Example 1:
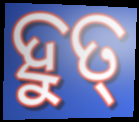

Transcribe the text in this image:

ହୁତ୍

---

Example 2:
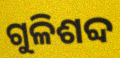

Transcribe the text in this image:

ଗୁଳିଶବ୍ଦ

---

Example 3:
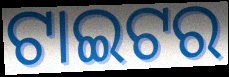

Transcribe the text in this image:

ଟାଇଟର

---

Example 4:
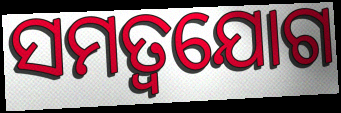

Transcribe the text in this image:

ସମତ୍ୱଯୋଗ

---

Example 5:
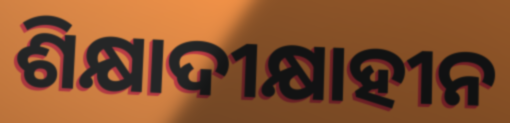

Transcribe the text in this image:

ଶିକ୍ଷାଦୀକ୍ଷାହୀନ